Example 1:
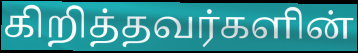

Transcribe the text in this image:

கிறித்தவர்களின்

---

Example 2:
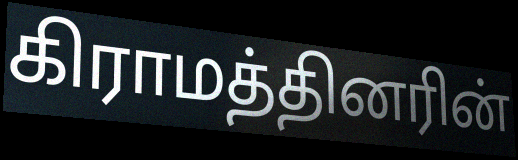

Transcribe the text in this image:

கிராமத்தினரின்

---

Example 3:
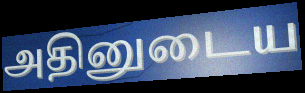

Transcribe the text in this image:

அதினுடைய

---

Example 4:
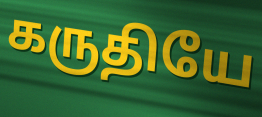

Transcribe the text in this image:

கருதியே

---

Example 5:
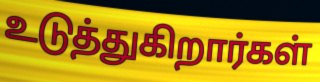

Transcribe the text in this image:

உடுத்துகிறார்கள்